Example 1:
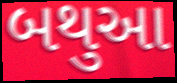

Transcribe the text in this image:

બથુઆ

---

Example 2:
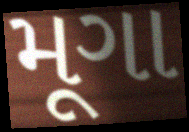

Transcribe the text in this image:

મૂગા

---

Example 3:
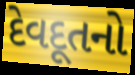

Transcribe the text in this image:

દેવદૂતનો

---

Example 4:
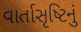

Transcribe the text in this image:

વાર્તાસૃષ્ટિનું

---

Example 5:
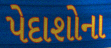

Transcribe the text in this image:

પેદાશોના